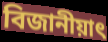
বিজানীয়াৎ